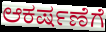
ಆಕರ್ಷಣೆಗೆ